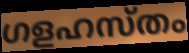
ഗളഹസ്തം